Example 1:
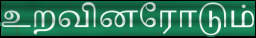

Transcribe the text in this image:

உறவினரோடும்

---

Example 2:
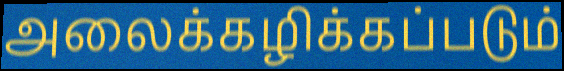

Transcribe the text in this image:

அலைக்கழிக்கப்படும்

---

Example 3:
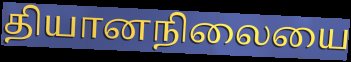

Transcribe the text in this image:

தியானநிலையை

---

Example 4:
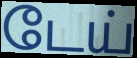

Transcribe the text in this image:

டேய்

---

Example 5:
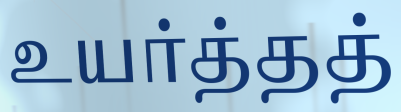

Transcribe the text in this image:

உயர்த்தத்